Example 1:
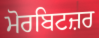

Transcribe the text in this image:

ਮੋਰਬਿਟਜ਼ਰ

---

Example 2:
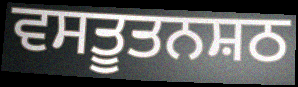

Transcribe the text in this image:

ਵਸਤੂਤਨਸ਼ਠ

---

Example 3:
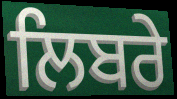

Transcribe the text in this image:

ਲਿਬਰੇ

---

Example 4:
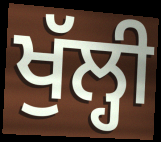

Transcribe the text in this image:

ਖੁੱਲ੍ਹੀ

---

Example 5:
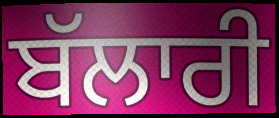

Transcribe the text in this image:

ਬੱਲਾਰੀ